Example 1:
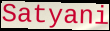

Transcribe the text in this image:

Satyani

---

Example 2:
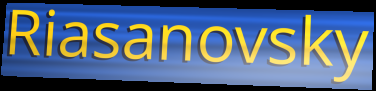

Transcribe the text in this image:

Riasanovsky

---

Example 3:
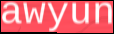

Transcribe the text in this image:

awyun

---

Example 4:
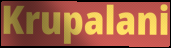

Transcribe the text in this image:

Krupalani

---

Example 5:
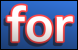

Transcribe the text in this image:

for